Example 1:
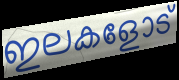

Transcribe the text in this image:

ഇലകളോട്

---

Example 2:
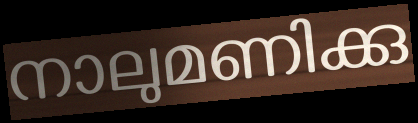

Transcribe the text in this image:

നാലുമണിക്കു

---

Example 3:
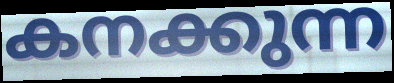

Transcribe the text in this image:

കനക്കുന്ന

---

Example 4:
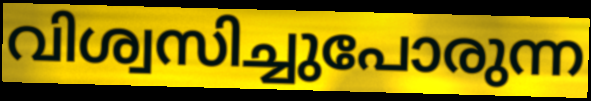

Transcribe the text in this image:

വിശ്വസിച്ചുപോരുന്ന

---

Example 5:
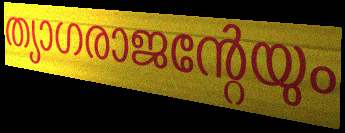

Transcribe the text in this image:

ത്യാഗരാജന്റേയും